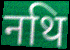
नथि